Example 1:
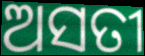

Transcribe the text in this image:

ଅସତୀ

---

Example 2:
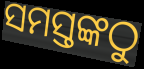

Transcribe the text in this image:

ସମସ୍ତଙ୍କଠୁ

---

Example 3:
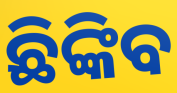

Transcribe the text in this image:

ଛିଙ୍କିବ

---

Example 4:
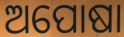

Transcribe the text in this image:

ଅପୋଷା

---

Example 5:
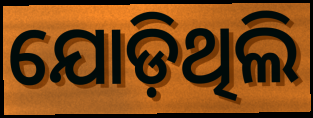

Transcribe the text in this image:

ଯୋଡ଼ିଥିଲି